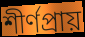
শীর্ণপ্রায়